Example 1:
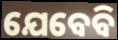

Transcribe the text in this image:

ଯେବେବି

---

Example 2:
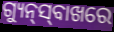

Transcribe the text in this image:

ଗ୍ୟୁନ୍‍ସ୍‍ବାଖରେ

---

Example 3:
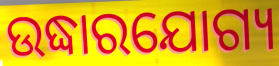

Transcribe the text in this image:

ଉଦ୍ଧାରଯୋଗ୍ୟ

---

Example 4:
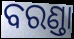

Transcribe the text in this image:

ବରଣ୍ଡା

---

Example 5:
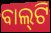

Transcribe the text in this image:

ବାଲ୍‍ଟି